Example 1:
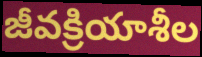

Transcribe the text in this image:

జీవక్రియాశీల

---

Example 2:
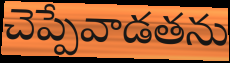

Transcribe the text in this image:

చెప్పేవాడతను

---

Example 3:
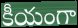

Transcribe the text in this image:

కీయంగా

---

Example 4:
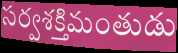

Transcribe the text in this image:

సర్వశక్తిమంతుడు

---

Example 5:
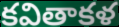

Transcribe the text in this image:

కవితాకళ